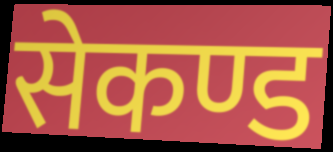
सेकण्ड